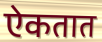
ऐकतात